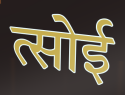
त्सोई